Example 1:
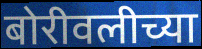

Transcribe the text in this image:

बोरीवलीच्या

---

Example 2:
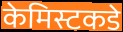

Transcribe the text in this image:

केमिस्टकडे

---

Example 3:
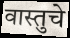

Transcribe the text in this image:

वास्तुचे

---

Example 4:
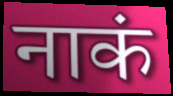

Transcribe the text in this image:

नाकं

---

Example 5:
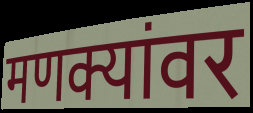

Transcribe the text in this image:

मणक्यांवर